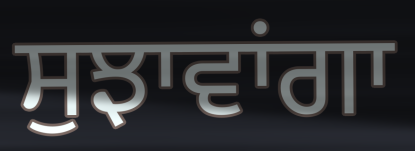
ਸੁਝਾਵਾਂਗਾ